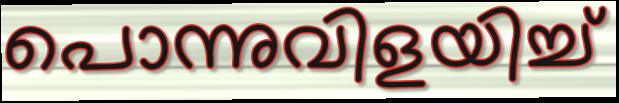
പൊന്നുവിളയിച്ച്